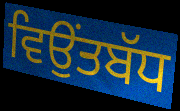
ਵਿਉਂਤਬੱਧ